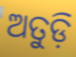
ଅତୁଡ଼ି